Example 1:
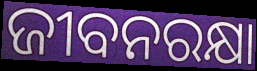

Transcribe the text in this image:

ଜୀବନରକ୍ଷା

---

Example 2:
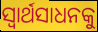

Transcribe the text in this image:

ସ୍ଵାର୍ଥସାଧନକୁ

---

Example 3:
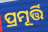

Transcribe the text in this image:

ପ୍ରମୂର୍ତ୍ତି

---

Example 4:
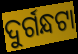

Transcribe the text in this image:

ଦୁର୍ଗନ୍ଧଟା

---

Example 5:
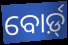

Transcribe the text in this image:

ବୋର୍ଡ଼୍